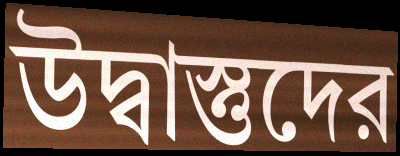
উদ্বাস্তুদের